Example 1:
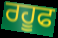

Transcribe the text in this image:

ਰਹੂਫ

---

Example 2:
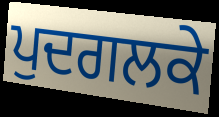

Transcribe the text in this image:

ਪੁਦਗਲਕੇ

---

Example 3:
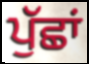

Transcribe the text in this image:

ਪੁੱਛਾਂ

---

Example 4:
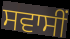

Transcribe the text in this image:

ਸਵਾਸੀਂ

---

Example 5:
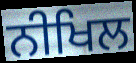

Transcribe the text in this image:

ਨੀਖਿਲ